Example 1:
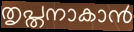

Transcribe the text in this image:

തൃപ്തനാകാൻ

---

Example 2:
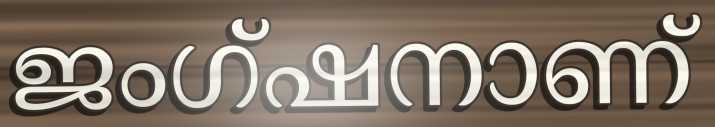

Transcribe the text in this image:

ജംഗ്ഷനാണ്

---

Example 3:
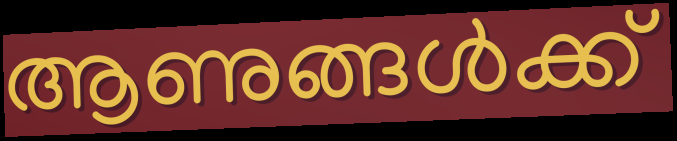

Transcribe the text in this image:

ആണുങ്ങൾക്ക്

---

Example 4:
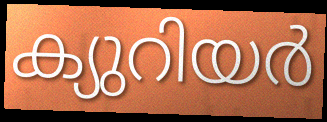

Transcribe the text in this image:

ക്യുറിയർ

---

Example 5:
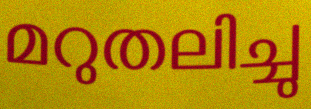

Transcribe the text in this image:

മറുതലിച്ചു